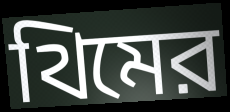
থিমের